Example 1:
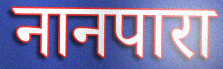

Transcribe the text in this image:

नानपारा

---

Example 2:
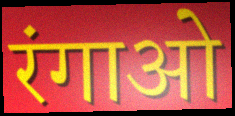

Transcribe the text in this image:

रंगाओ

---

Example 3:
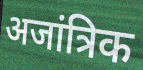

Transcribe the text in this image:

अजांत्रिक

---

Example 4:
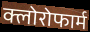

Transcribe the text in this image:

क्लोरोफार्म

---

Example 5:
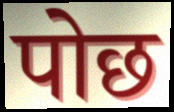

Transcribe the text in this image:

पोछ